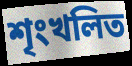
শৃংখলিত